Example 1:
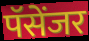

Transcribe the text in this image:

पॅसेंजर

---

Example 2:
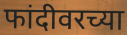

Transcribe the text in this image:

फांदीवरच्या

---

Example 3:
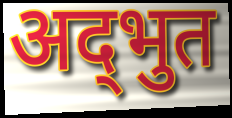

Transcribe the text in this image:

अद्‍भुत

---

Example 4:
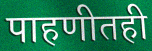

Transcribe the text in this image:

पाहणीतही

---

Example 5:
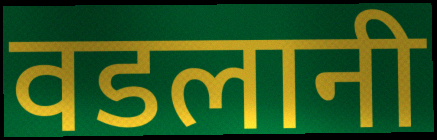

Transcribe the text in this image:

वडलानी